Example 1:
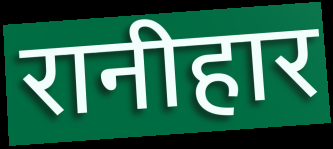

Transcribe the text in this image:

रानीहार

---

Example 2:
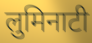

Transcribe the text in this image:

लुमिनाटी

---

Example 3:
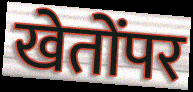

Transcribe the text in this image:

खेतोंपर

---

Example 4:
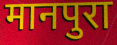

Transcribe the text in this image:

मानपुरा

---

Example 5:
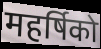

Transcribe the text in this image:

महर्षिको